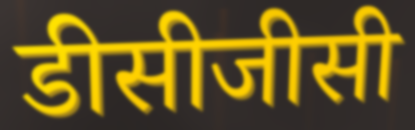
डीसीजीसी